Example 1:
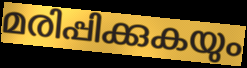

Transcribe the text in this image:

മരിപ്പിക്കുകയും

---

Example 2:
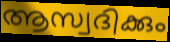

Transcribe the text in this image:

ആസ്വദിക്കും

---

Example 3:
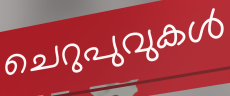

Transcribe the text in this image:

ചെറുപുവുകൾ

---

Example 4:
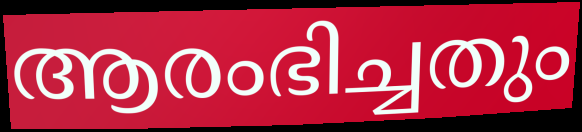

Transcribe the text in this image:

ആരംഭിച്ചതും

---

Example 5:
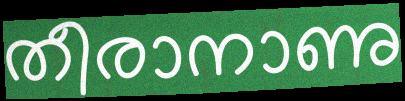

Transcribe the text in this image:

തീരാനാണു